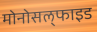
मोनोसल्फाइड